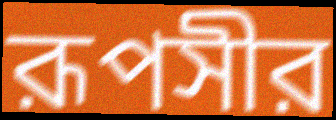
রূপসীর